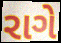
રાગે